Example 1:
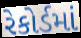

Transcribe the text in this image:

રેકોર્ડમાં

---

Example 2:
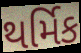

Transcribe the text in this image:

થર્મિક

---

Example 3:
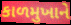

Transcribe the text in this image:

કાળમુખાને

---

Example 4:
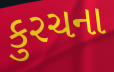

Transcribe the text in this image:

કુરચના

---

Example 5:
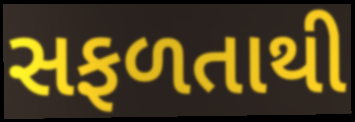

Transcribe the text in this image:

સફળતાથી